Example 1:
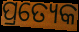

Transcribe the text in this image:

ପ୍ରତ୍ଯେକ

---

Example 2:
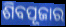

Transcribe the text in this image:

ଶିବପୂଜାର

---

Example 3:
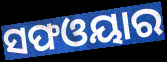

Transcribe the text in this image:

ସଫଓୟାର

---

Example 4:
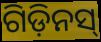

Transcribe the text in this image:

ଗିଡ଼ିନସ୍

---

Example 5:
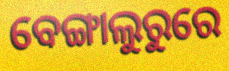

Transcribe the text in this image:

ବେଙ୍ଗାଲୁରୁରେ